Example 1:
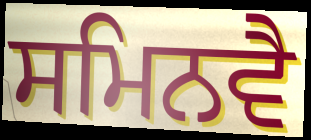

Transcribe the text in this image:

ਸਮਿਨਵੈ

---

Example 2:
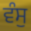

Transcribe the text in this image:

ਵੰਸੁ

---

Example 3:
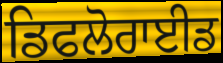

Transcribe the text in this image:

ਡਿਫਲੋਰਾਈਡ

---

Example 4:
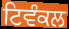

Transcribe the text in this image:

ਟਿਵੰਕਲ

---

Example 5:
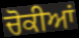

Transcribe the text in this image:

ਚੋਕੀਆਂ